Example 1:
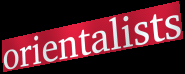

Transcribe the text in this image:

orientalists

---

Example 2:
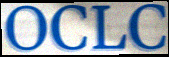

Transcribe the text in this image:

OCLC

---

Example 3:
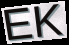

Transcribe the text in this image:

EK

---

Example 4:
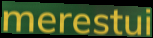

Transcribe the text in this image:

merestui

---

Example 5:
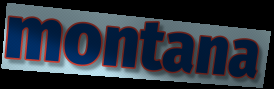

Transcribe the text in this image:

montana